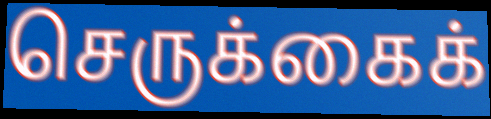
செருக்கைக்